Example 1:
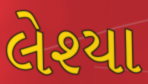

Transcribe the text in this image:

લેશ્યા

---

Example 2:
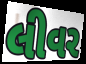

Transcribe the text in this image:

લીવર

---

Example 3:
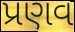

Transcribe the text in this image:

પ્રણવ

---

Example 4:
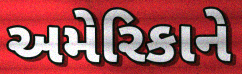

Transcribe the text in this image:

અમેરિકાને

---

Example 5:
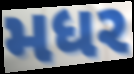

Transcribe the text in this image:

મધર